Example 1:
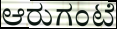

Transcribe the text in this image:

ಆರುಗಂಟೆ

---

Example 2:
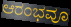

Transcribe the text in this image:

ಆರಂಭವೂ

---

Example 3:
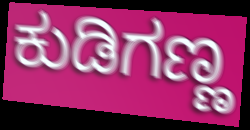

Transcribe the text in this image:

ಕುಡಿಗಣ್ಣ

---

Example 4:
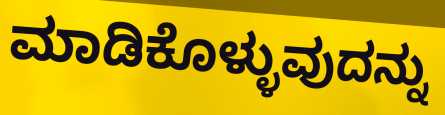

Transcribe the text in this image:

ಮಾಡಿಕೊಳ್ಳುವುದನ್ನು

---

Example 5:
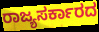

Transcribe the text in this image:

ರಾಜ್ಯಸರ್ಕಾರದ